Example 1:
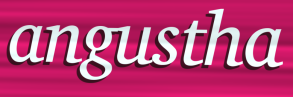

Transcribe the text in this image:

angustha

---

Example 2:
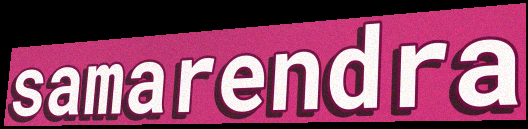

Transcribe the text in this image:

samarendra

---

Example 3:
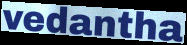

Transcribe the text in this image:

vedantha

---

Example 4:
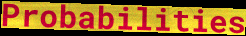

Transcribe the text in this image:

Probabilities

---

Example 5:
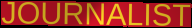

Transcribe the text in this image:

JOURNALIST